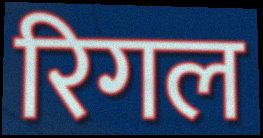
रिगल